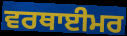
ਵਰਥਾਈਮਰ